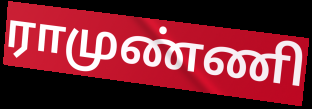
ராமுண்ணி